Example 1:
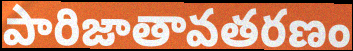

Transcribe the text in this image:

పారిజాతావతరణం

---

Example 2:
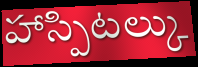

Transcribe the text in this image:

హాస్పిటల్కు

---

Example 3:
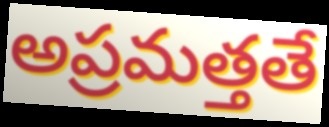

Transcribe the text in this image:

అప్రమత్తతే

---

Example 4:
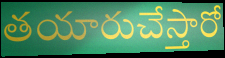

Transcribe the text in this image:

తయారుచేస్తారో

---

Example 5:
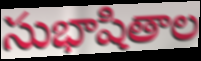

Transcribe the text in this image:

సుభాషితాల